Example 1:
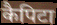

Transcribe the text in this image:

कैपिटा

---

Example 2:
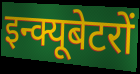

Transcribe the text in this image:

इन्क्यूबेटरों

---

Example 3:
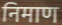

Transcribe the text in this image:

निमाण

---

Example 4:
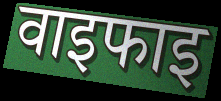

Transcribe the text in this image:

वाइफाइ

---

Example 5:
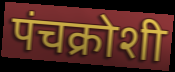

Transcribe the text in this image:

पंचक्रोशी